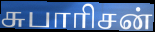
சுபாரிசன்